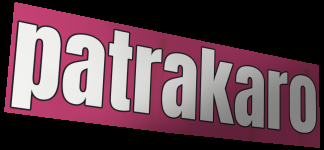
patrakaro